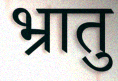
भ्रातु